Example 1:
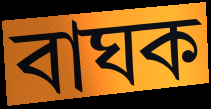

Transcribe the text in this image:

বাঘক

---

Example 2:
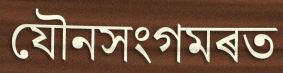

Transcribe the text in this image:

যৌনসংগমৰত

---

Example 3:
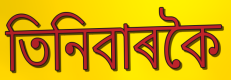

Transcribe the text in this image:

তিনিবাৰকৈ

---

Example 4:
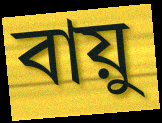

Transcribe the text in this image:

বায়ু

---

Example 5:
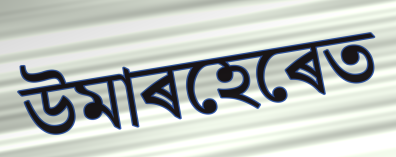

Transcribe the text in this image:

উমাৰহেৰেত